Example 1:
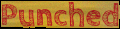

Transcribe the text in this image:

Punched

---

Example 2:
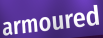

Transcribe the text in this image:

armoured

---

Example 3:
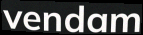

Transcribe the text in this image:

vendam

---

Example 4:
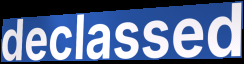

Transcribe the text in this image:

declassed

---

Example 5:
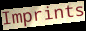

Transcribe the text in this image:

Imprints